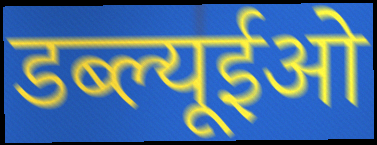
डब्ल्यूईओ